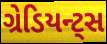
ગ્રેડિયન્ટ્સ